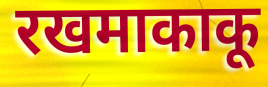
रखमाकाकू